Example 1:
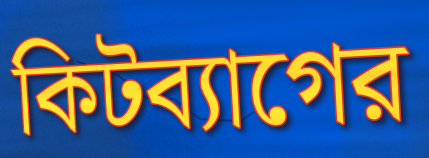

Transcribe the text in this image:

কিটব্যাগের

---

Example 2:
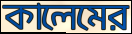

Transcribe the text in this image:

কালেমের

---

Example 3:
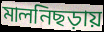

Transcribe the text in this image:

মালনিছড়ায়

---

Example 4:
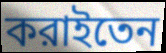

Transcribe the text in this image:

করাইতেন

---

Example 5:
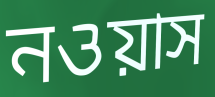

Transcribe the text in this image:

নওয়াস